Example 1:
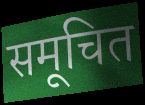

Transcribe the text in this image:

समूचित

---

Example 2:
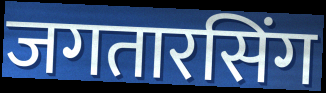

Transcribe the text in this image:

जगतारसिंग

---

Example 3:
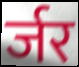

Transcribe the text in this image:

र्जर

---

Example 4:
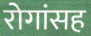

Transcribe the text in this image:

रोगांसह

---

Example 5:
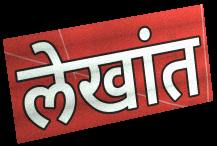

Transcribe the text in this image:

लेखांत